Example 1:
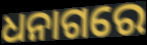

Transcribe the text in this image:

ଧନାଗରେ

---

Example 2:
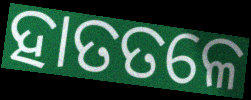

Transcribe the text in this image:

ହାତତଳେ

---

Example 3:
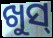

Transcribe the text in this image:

ଖୁସ୍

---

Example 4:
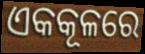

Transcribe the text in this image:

ଏକକୂଳରେ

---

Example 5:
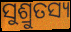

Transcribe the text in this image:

ସୁଶ୍ରୁତସ୍ୟ